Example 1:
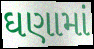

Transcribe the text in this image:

ઘણામાં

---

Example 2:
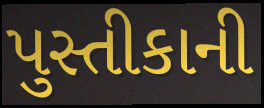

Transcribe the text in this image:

પુસ્તીકાની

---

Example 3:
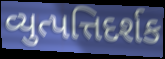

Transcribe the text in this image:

વ્યુત્પત્તિદર્શક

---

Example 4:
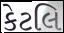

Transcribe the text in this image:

કેટલિ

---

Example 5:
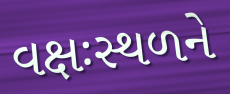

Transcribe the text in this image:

વક્ષઃસ્થળને